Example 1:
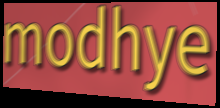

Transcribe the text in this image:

modhye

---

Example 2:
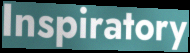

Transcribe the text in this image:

Inspiratory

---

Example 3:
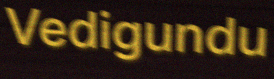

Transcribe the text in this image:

Vedigundu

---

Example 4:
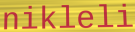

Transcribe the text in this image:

nikleli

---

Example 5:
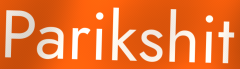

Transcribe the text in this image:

Parikshit